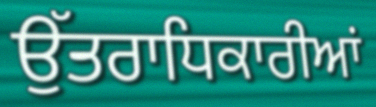
ਉੱਤਰਾਧਿਕਾਰੀਆਂ